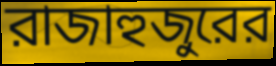
রাজাহুজুরের